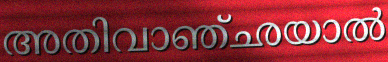
അതിവാഞ്ഛയാൽ